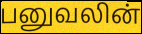
பனுவலின்